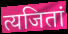
त्यजितां